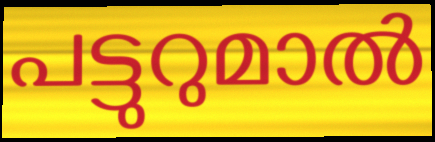
പട്ടുറുമാൽ